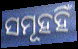
ସମୂହହିଁ